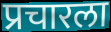
प्रचारला